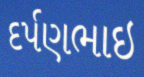
દર્પણભાઇ